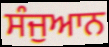
ਸੰਜੁਆਨ